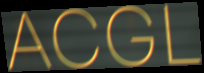
ACGL